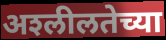
अश्‍लीलतेच्या